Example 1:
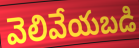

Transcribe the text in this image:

వెలివేయబడి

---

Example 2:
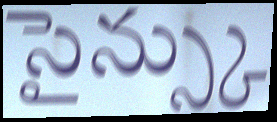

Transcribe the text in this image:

సైన్స్కు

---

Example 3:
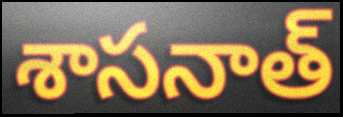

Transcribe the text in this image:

శాసనాత్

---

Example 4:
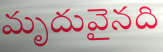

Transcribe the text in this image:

మృదువైనది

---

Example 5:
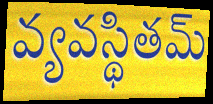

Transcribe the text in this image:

వ్యవస్థితమ్